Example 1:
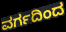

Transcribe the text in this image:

ವರ್ಗದಿಂದ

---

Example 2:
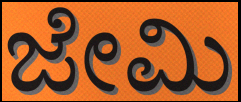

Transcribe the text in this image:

ಜೇಮಿ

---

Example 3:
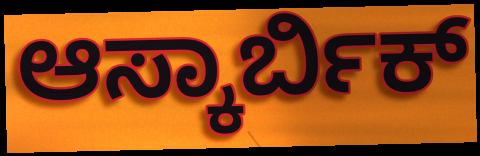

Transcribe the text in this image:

ಆಸ್ಕಾರ್ಬಿಕ್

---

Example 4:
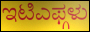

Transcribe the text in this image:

ಇಟಿಎಫ್ಗಳು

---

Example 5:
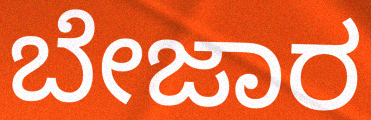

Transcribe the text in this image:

ಬೇಜಾರ